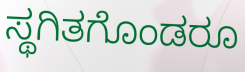
ಸ್ಥಗಿತಗೊಂಡರೂ